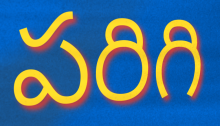
పరిగి